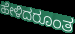
ಹೇಳಿದರೂಂತ